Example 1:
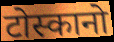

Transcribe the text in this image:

टोस्कानो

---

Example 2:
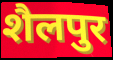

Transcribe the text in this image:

शैलपुर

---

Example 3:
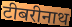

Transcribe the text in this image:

टीबरीनाथ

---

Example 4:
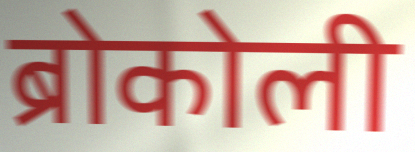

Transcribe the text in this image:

ब्रोकोली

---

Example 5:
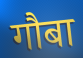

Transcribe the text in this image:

गौबा